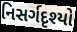
નિસર્ગદૃશ્યો